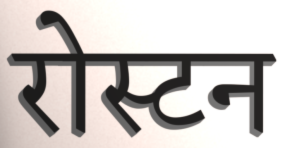
रोस्टन